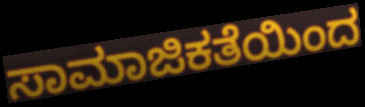
ಸಾಮಾಜಿಕತೆಯಿಂದ